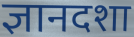
ज्ञानदशा